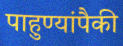
पाहुण्यांपैकी